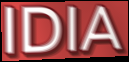
IDIA